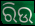
ରିଉ